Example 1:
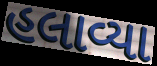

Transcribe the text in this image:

હલાવ્યા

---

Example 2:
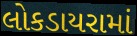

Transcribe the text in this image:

લોકડાયરામાં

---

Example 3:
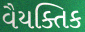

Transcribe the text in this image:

વૈયક્તિક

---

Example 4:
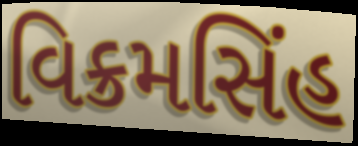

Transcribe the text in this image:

વિક્રમસિંહ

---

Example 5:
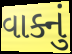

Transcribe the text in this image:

વાક્નું